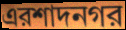
এরশাদনগর